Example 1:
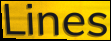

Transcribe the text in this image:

Lines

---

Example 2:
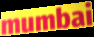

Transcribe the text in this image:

mumbai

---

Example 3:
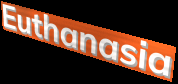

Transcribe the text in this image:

Euthanasia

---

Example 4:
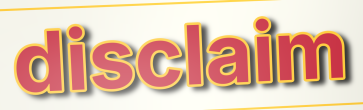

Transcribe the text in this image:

disclaim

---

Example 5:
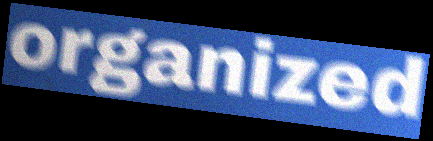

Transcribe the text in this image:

organized